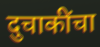
दुचाकींचा